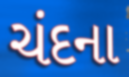
ચંદના